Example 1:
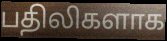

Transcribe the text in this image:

பதிலிகளாக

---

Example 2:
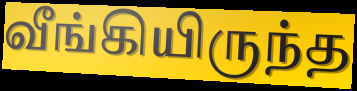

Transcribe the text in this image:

வீங்கியிருந்த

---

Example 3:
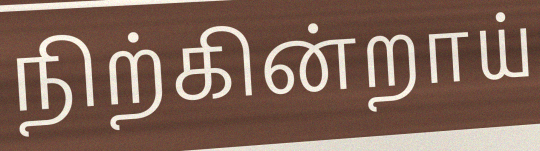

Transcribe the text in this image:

நிற்கின்றாய்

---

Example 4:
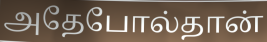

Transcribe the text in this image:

அதேபோல்தான்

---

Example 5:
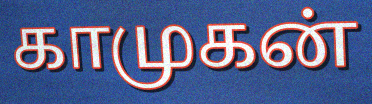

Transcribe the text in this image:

காமுகன்